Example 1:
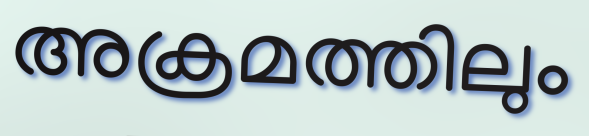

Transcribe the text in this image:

അക്രമത്തിലും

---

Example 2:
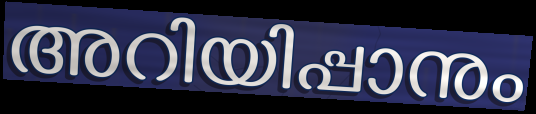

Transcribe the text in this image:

അറിയിപ്പാനും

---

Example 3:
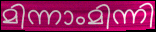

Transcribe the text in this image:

മിന്നാംമിന്നി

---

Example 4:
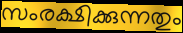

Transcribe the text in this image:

സംരക്ഷിക്കുന്നതും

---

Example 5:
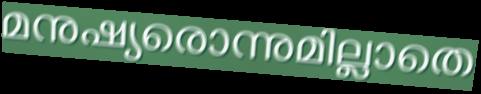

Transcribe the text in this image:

മനുഷ്യരൊന്നുമില്ലാതെ